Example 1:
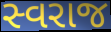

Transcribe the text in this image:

સ્વરાજ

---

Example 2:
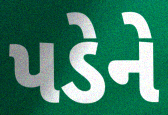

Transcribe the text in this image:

પડેને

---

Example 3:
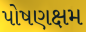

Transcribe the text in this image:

પોષણક્ષમ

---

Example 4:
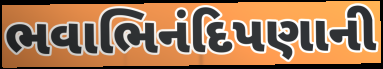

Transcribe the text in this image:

ભવાભિનંદિપણાની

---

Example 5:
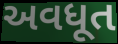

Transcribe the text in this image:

અવધૂત